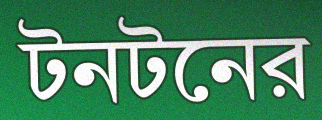
টনটনের